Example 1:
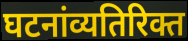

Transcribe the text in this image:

घटनांव्यतिरिक्त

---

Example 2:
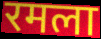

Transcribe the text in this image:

रमला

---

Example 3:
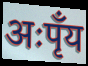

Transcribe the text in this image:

अःपृँय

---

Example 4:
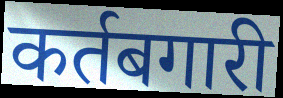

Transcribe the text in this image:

कर्तबगारी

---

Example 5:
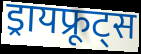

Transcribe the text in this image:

ड्रायफ्रूट्स